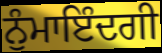
ਨੁੰਮਾਇੰਦਗੀ